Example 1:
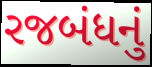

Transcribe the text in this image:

રજબંધનું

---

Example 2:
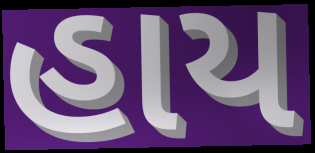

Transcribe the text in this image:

હાય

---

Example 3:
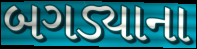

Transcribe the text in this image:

બગડ્યાના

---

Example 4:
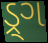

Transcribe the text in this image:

ડ્ર્ગ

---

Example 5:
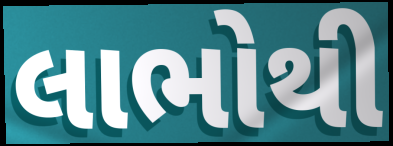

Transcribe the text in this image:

લાભોથી